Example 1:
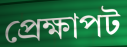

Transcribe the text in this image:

প্রেক্ষাপট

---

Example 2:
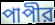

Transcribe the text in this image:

পাপীর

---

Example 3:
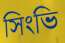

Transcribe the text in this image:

সিংভি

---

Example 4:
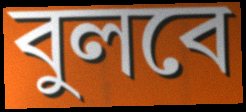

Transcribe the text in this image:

বুলবে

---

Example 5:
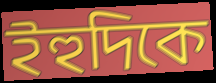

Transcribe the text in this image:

ইহুদিকে